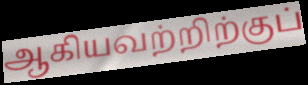
ஆகியவற்றிற்குப்